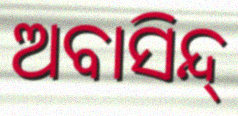
ଅବାସିନ୍ଦ୍